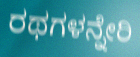
ರಥಗಳನ್ನೇರಿ